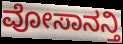
ವೋಸಾನನ್ತಿ